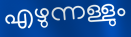
എഴുന്നള്ളും